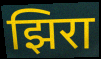
झिरा